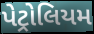
પેટ્રોલિયમ